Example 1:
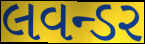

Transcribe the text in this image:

લવન્ડર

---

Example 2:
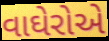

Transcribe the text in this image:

વાઘેરોએ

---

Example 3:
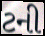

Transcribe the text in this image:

ટની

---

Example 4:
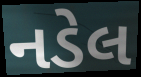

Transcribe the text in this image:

નડેલ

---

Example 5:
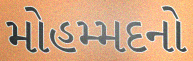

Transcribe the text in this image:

મોહમ્મદનો